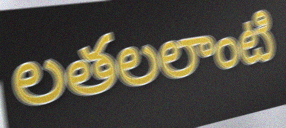
లతలలాంటి